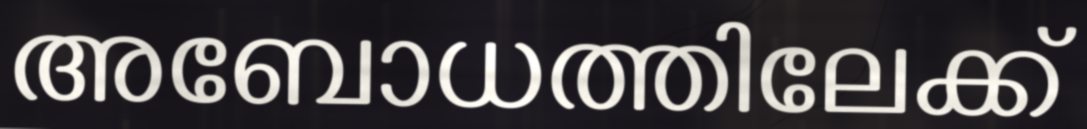
അബോധത്തിലേക്ക്